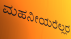
ಮಹನೀಯರೆಲ್ಲರ